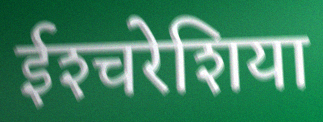
ईश्चरेशिया